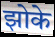
झोके